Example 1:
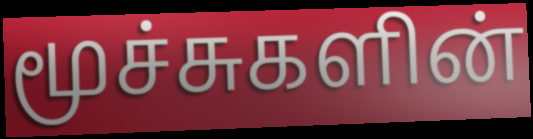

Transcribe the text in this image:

மூச்சுகளின்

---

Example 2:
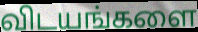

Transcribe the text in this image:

விடயங்களை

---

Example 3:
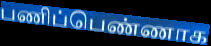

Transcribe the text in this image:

பணிப்பெண்ணாக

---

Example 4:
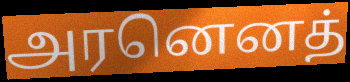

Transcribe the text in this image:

அரனெனத்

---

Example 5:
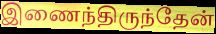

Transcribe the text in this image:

இணைந்திருந்தேன்